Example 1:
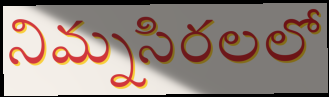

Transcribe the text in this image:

నిమ్నసిరలలో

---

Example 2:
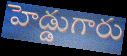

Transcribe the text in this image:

హెడ్డుగారు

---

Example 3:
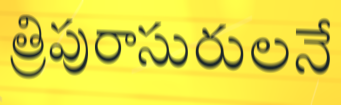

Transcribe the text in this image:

త్రిపురాసురులనే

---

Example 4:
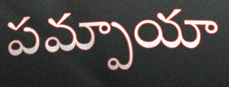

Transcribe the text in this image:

పమ్పాయా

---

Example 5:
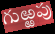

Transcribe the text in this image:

గుఱ్ఱపు